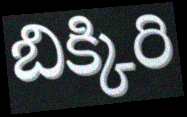
బిక్కిరి